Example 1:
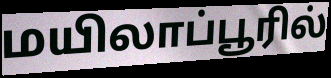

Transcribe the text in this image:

மயிலாப்பூரில்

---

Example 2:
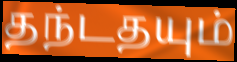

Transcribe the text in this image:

தந்டதயும்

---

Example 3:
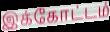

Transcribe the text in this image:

இக்கோட்டம்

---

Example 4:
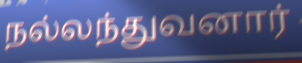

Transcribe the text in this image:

நல்லந்துவனார்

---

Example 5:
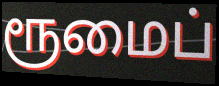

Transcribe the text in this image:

ரூமைப்